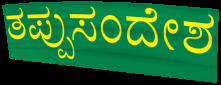
ತಪ್ಪುಸಂದೇಶ